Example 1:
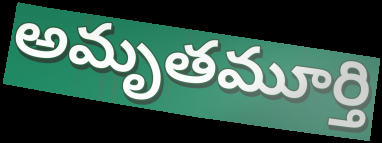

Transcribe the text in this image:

అమృతమూర్తి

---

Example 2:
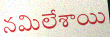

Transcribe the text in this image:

నమిలేశాయి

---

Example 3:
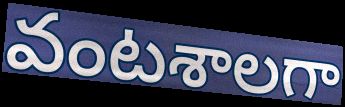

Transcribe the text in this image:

వంటశాలగా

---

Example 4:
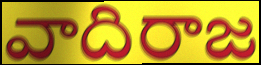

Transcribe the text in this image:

వాదిరాజ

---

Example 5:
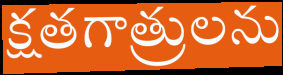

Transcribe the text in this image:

క్షతగాత్రులను